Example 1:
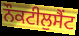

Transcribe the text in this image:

ਨੌਕਟੀਲੁਸੈਂਟ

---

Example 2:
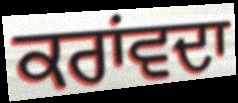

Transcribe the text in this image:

ਕਰਾਂਵਦਾ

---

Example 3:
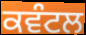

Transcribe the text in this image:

ਕਵੰਟਲ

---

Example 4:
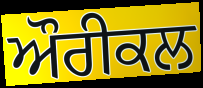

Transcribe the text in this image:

ਔਰੀਕਲ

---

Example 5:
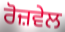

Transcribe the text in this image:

ਰੋਜ਼ਵੇਲ